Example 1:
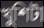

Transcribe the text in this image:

খুশিটা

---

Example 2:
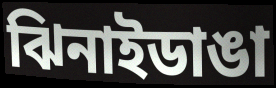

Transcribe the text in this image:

ঝিনাইডাঙা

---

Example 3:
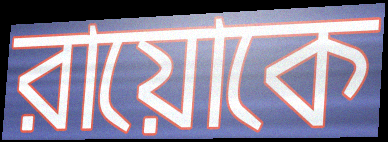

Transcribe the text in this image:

রায়োকে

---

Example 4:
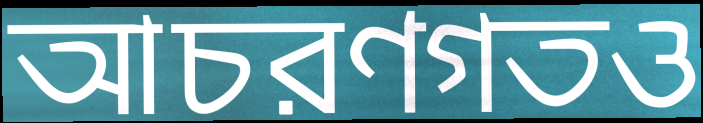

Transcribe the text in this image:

আচরণগতও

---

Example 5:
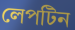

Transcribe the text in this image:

লেপটিন